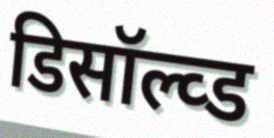
डिसॉल्व्ड